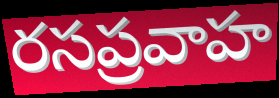
రసప్రవాహ